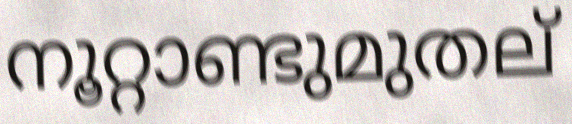
നൂറ്റാണ്ടുമുതല്